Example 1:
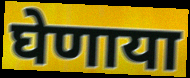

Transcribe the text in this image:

घेणाया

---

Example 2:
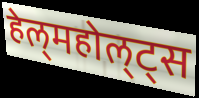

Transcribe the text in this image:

हेल्महोल्ट्स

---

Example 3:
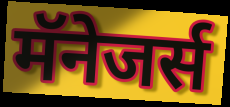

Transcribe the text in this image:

मॅनेजर्स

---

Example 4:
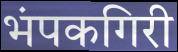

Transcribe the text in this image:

भंपकगिरी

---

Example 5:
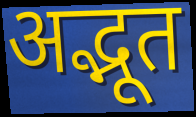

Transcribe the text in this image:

अद्भूत